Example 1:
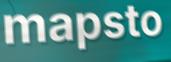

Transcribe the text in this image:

mapsto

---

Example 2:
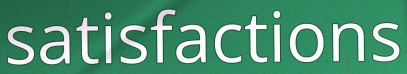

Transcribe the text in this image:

satisfactions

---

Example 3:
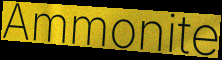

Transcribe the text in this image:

Ammonite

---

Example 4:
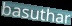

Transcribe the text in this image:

basuthar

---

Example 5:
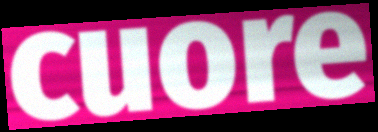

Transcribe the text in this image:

cuore